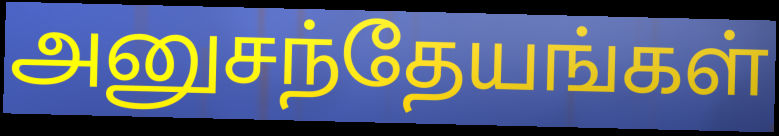
அனுசந்தேயங்கள்